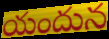
యందున